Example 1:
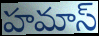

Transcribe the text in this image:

హమాస్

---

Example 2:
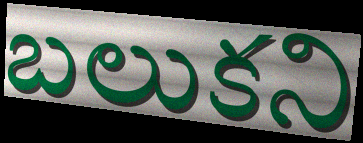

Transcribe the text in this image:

బలుకని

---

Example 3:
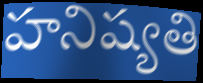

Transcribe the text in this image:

హనిష్యతి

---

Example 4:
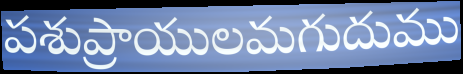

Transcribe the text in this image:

పశుప్రాయులమగుదుము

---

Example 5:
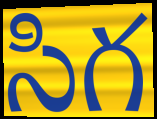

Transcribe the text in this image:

సిగ